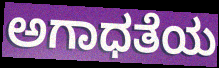
ಅಗಾಧತೆಯ